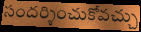
సందర్శించుకోవచ్చు